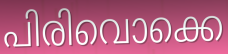
പിരിവൊക്കെ